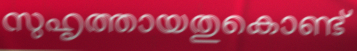
സുഹൃത്തായതുകൊണ്ട്